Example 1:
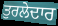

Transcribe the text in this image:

ਤੁਰਲੇਦਾਰ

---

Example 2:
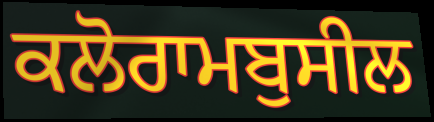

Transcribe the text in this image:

ਕਲੋਰਾਮਬੁਸੀਲ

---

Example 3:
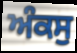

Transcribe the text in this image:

ਅੰਕਸੁ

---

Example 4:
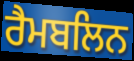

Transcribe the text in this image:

ਰੈਮਬਲਿਨ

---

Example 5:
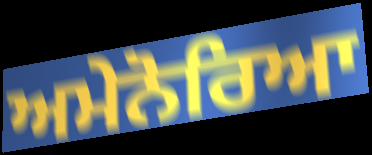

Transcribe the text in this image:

ਅਮੇਨੋਰਿਆ